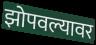
झोपवल्यावर